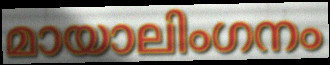
മായാലിംഗനം